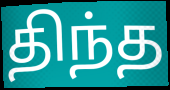
திந்த